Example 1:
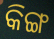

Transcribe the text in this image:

କିଙ୍ଗ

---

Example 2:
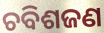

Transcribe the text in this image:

ଚବିଶଜଣ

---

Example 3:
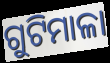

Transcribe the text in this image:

ଗୁଟିମାଳା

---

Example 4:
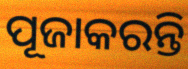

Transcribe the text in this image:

ପୂଜାକରନ୍ତି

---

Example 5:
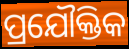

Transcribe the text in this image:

ପ୍ରଯୌକ୍ତିକ